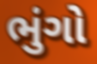
ભુંગો